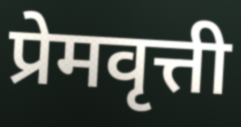
प्रेमवृत्ती